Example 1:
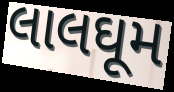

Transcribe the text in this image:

લાલઘૂમ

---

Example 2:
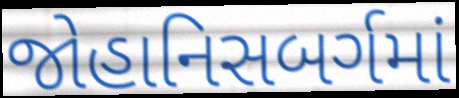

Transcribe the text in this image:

જોહાનિસબર્ગમાં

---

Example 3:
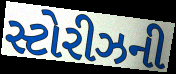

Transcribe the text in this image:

સ્ટોરીઝની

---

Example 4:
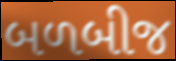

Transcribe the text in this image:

બળબીજ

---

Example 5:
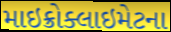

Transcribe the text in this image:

માઇક્રોક્લાઇમેટના